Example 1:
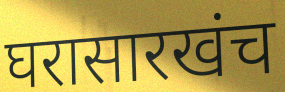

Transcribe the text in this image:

घरासारखंच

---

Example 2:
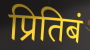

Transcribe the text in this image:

प्रितिबं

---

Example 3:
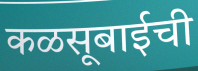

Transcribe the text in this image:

कळसूबाईची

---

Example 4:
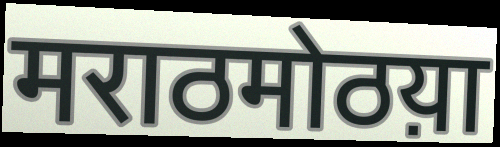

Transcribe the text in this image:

मराठमोठय़ा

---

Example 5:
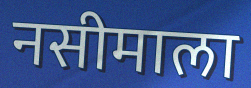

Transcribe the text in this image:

नसीमाला